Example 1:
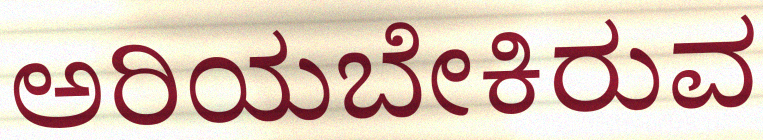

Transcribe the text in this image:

ಅರಿಯಬೇಕಿರುವ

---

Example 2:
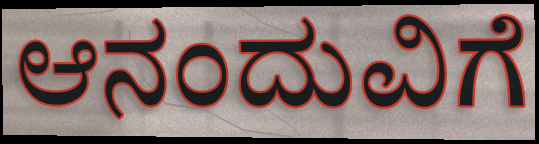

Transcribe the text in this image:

ಆನಂದುವಿಗೆ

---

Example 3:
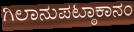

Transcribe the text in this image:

ಗಿಲಾನುಪಟ್ಠಾಕಾನಂ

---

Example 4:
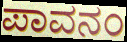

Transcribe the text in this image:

ಪಾವನಂ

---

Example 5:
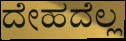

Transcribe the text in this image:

ದೇಹದೆಲ್ಲ